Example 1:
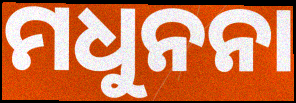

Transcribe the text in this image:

ମଧୁନନା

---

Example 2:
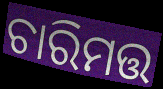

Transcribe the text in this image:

ଚାରିମତ୍ତ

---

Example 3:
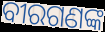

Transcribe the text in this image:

ବୀରଗଣଙ୍କ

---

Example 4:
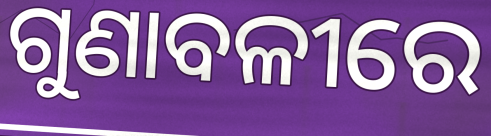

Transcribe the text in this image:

ଗୁଣାବଳୀରେ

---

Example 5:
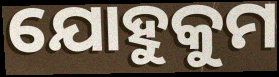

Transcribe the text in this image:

ଯୋହୁକୁମ